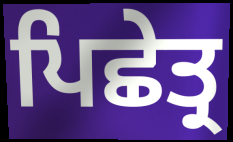
ਪਿਛੇਤ੍ਰ